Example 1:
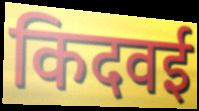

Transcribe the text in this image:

किदवई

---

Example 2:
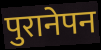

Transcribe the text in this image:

पुरानेपन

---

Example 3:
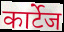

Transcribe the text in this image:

कार्टेज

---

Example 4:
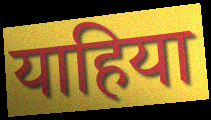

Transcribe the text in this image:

याहिया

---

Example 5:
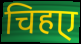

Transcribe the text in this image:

चिहए